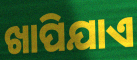
ଖାପିଯାଏ